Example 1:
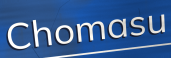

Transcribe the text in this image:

Chomasu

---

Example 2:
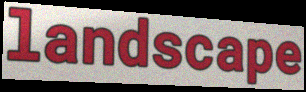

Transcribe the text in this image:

landscape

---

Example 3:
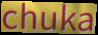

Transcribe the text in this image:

chuka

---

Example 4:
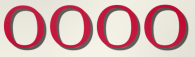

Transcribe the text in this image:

OOOO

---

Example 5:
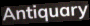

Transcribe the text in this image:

Antiquary